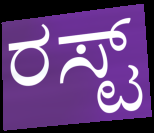
ರಸ್ಟ್